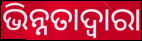
ଭିନ୍ନତାଦ୍ୱାରା